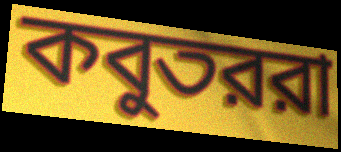
কবুতররা